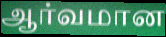
ஆர்வமான